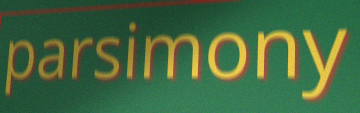
parsimony